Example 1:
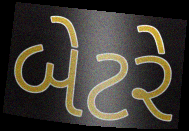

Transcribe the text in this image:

બેટરે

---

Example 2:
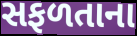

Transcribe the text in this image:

સફળતાના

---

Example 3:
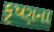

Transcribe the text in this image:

કૃષ્ણના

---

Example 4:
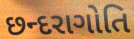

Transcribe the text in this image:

છન્દરાગોતિ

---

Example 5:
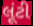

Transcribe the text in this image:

લૂંટી